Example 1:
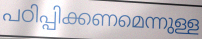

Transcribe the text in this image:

പഠിപ്പിക്കണമെന്നുള്ള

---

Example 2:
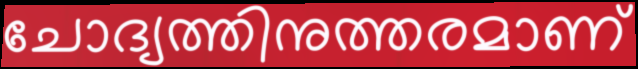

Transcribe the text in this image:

ചോദ്യത്തിനുത്തരമാണ്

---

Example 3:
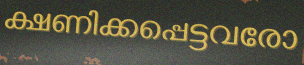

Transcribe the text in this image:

ക്ഷണിക്കപ്പെട്ടവരോ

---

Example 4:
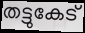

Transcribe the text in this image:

തട്ടുകേട്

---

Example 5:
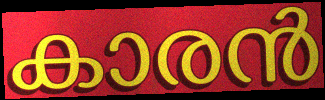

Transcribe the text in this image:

കാരൻ